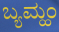
ಬ್ಯಮ್ಹಂ